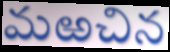
మఱచిన